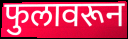
फुलावरून